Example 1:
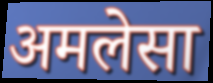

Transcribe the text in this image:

अमलेसा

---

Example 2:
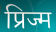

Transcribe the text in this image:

प्रिज्म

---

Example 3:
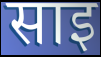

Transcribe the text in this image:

साइ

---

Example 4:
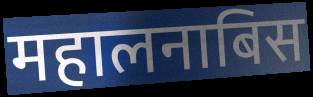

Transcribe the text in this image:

महालनाबिस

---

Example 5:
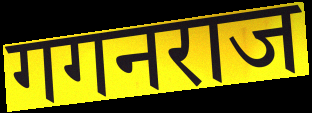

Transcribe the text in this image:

गगनराज